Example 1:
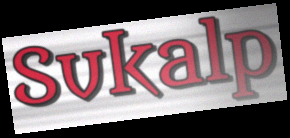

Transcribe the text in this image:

Sukalp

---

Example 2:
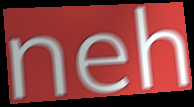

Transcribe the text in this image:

neh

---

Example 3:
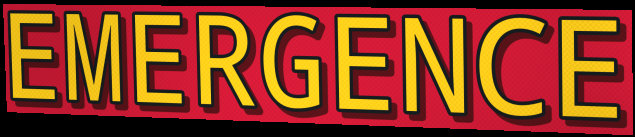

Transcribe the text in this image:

EMERGENCE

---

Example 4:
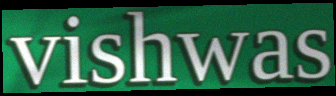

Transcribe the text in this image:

vishwas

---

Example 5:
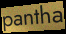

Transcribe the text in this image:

pantha